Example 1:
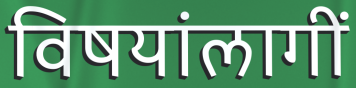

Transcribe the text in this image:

विषयांलागीं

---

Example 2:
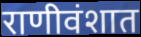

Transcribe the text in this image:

राणीवंशात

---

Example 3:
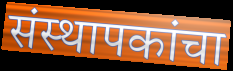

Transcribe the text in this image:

संस्थापकांचा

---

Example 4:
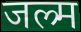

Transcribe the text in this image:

जल्म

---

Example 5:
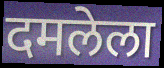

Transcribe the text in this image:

दमलेला